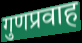
गुणप्रवाह